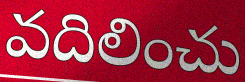
వదిలించు